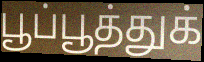
பூப்பூத்துக்